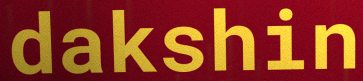
dakshin